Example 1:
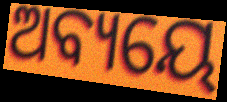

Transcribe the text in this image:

ଅବ୍ୟୟେ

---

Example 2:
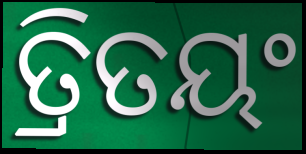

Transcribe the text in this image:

ତ୍ରିତୟଂ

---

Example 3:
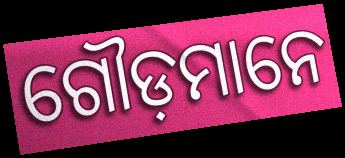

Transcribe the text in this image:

ଗୌଡ଼ମାନେ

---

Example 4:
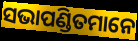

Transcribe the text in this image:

ସଭାପଣ୍ଡିତମାନେ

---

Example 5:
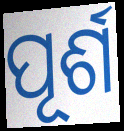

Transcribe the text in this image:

ପୂର୍ଶ